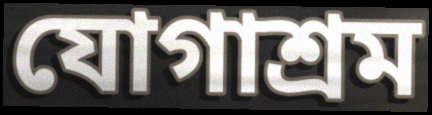
যোগাশ্রম